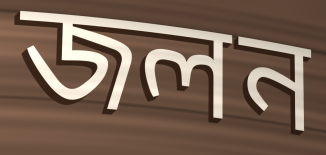
জলন